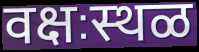
वक्षःस्थळ